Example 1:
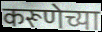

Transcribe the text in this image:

करूणेच्या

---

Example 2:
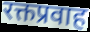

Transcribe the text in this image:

रक्तप्रवाह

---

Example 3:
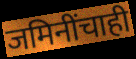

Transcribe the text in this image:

जमिनींचाही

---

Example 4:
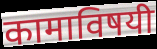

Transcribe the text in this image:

कामाविषयी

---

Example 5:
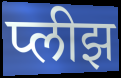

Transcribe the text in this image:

प्लीझ